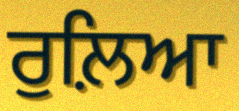
ਰੁਲ਼ਿਆ